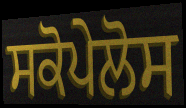
ਸਕੋਪੇਲੋਸ